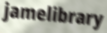
jamelibrary